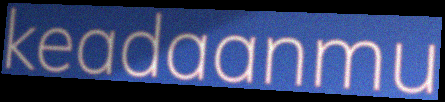
keadaanmu